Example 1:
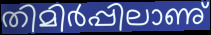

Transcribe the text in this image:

തിമിർപ്പിലാണു്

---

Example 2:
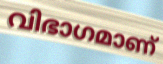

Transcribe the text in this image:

വിഭാഗമാണ്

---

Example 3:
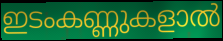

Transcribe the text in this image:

ഇടംകണ്ണുകളാൽ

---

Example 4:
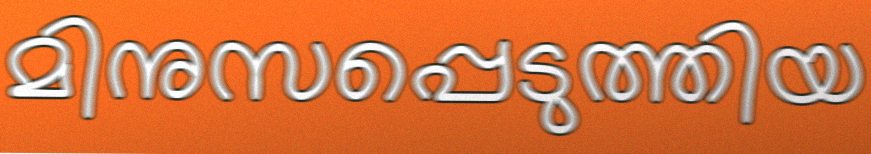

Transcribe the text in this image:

മിനുസപ്പെടുത്തിയ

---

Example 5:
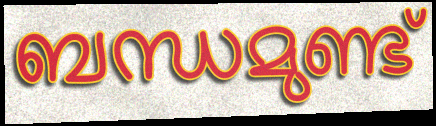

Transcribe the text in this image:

ബന്ധമുണ്ട്